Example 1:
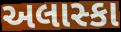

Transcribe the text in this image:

અલાસ્કા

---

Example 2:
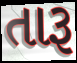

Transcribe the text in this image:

તારૂ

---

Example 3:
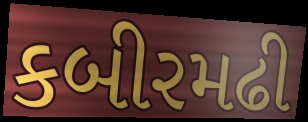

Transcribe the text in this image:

કબીરમઢી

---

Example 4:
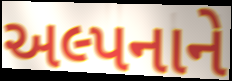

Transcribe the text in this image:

અલ્પનાને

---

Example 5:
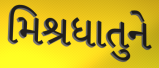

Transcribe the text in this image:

મિશ્રધાતુને